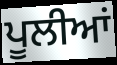
ਪੂਲੀਆਂ